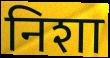
निशा